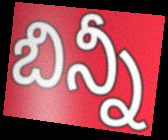
బిన్నీ